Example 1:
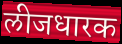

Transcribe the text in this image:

लीजधारक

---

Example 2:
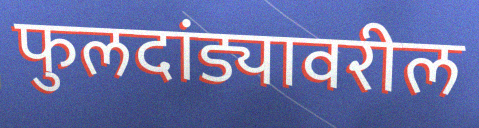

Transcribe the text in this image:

फुलदांड्यावरील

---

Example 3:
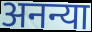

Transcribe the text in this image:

अनन्या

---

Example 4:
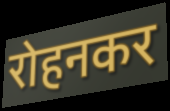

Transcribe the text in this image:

रोहनकर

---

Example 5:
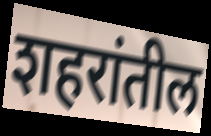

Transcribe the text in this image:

शहरांतील